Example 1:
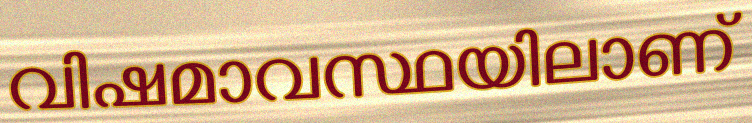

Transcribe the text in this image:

വിഷമാവസ്ഥയിലാണ്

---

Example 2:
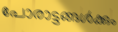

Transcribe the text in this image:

പോരാട്ടങ്ങൾക്കും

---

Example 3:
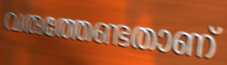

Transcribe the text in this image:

വരുത്തേണ്ടതാണ്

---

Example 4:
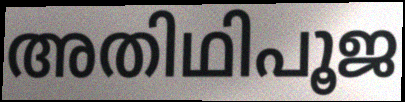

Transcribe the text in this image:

അതിഥിപൂജ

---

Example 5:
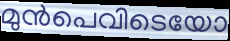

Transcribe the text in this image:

മുൻപെവിടെയോ